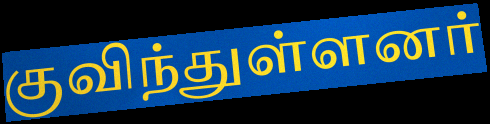
குவிந்துள்ளனர்